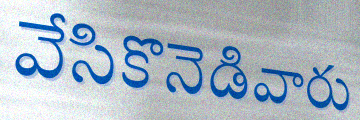
వేసికొనెడివారు